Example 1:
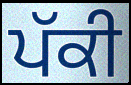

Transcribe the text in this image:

ਪੱਕੀ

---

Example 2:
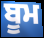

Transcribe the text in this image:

ਬੂਮ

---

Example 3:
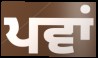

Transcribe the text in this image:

ਪਵਾਂ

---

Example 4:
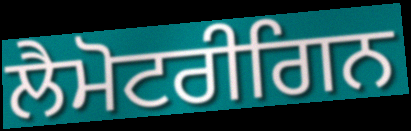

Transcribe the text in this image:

ਲੈਮੋਟਰੀਗਿਨ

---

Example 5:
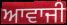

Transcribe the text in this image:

ਆਵਾਜੀ